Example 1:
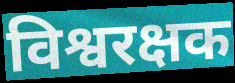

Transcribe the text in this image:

विश्वरक्षक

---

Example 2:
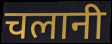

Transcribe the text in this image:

चलानी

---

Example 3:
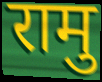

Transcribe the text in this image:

रामु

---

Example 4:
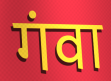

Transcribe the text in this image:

गंवा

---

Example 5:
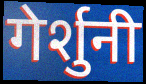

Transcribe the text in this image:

गेर्शुनी